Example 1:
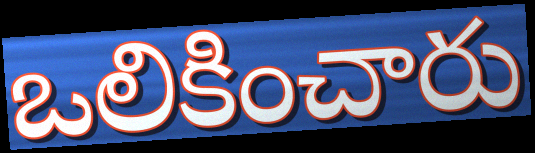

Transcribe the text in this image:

ఒలికించారు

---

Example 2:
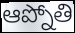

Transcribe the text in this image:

ఆప్నోతి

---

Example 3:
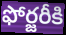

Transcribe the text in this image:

ఫోర్జరీకి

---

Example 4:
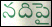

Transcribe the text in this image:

నదిపై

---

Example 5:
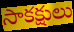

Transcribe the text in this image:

సాకక్షులు